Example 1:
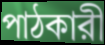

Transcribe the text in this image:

পাঠকারী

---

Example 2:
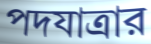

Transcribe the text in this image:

পদযাত্রার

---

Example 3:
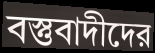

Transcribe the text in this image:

বস্তুবাদীদের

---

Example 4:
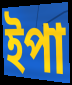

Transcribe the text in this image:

ইপা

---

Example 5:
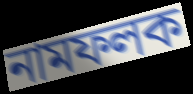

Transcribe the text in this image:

নামফলক